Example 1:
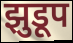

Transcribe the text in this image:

झुडूप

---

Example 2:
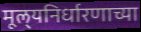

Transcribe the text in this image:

मूल्यनिर्धारणाच्या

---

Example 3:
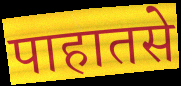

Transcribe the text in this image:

पाहातसे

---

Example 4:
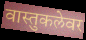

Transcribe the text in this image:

वास्तुकलेवर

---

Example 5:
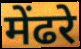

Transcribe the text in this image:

मेंढरे